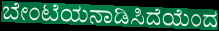
ಬೇಂಟೆಯನಾಡಿಸಿದೆಯೆಂದ